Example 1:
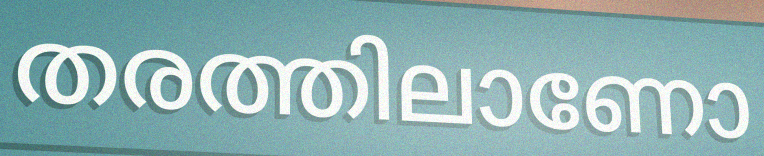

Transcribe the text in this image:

തരത്തിലാണോ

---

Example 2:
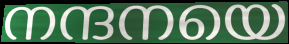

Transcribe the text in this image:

നന്ദനയെ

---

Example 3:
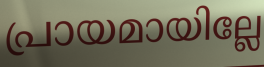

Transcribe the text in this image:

പ്രായമായില്ലേ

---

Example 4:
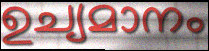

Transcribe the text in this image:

ഉച്യമാനം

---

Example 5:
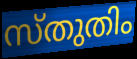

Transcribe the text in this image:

സ്തുതിം